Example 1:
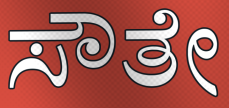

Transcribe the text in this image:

ಸೌತೇ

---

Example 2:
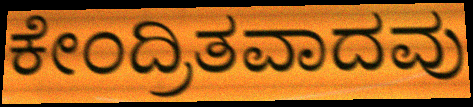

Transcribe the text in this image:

ಕೇಂದ್ರಿತವಾದವು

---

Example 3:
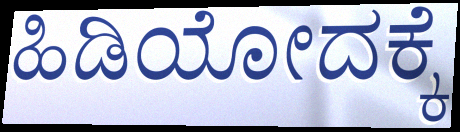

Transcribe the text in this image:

ಹಿಡಿಯೋದಕ್ಕೆ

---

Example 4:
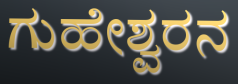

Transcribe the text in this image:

ಗುಹೇಶ್ವರನ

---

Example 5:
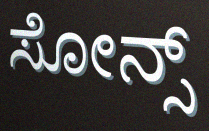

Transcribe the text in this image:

ಸೋನ್ಸ್